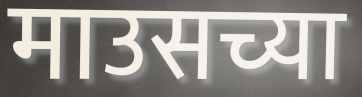
माउसच्या